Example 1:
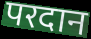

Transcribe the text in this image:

परदान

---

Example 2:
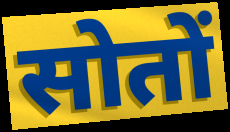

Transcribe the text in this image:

सोतों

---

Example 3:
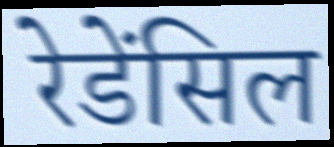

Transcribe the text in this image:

रेडेंसिल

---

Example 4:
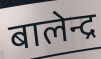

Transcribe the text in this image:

बालेन्द्र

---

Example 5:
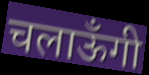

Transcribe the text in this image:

चलाऊँगी